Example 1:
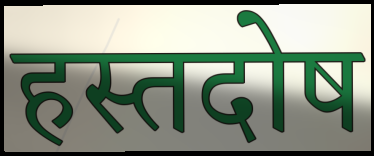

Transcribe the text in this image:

हस्तदोष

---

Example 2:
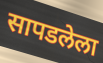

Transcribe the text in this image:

सापडलेला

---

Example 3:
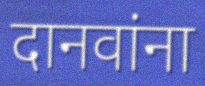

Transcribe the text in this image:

दानवांना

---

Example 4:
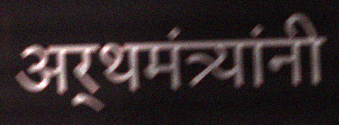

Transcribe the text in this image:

अर्थमंत्र्यांनी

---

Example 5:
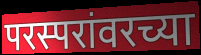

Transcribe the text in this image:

परस्परांवरच्या